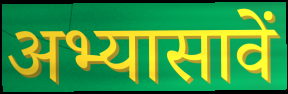
अभ्यासावें